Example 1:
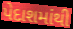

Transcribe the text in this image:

પેદાશમાંથી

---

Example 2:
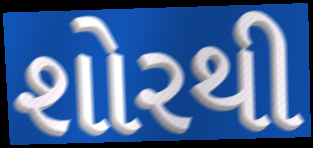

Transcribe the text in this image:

શોરથી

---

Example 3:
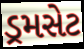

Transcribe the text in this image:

ડ્રમસેટ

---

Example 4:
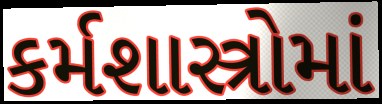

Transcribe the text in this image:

કર્મશાસ્ત્રોમાં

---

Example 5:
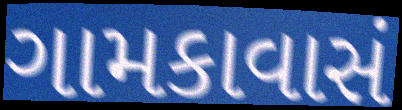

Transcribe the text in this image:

ગામકાવાસં